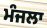
ਮੰਜਲਾ